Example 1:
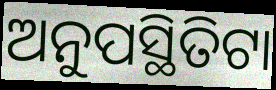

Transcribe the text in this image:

ଅନୁପସ୍ଥିତିଟା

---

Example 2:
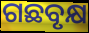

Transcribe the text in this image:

ଗଛବୃକ୍ଷ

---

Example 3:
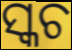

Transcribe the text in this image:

ସ୍କଚ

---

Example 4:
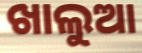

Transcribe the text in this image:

ଖାଲୁଆ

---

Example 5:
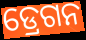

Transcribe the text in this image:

ଡ୍ରେଗନ